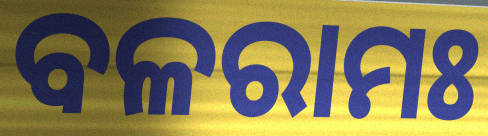
ବଳରାମଃ